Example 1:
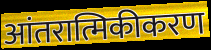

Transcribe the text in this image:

आंतरात्मिकीकरण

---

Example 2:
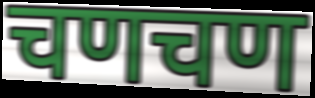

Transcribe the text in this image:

चणचण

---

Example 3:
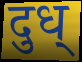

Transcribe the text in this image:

दुध्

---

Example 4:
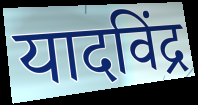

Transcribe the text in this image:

यादविंद्र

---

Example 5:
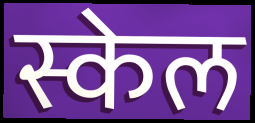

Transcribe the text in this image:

स्केल